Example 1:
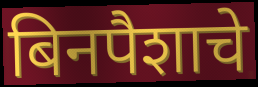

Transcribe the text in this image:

बिनपैशाचे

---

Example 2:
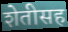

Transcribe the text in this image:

शेतीसह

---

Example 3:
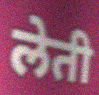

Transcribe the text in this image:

लेती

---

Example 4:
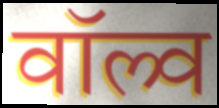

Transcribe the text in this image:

वॉल्व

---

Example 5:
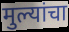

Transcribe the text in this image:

मुल्यांचा